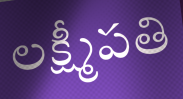
లక్ష్మీపతి